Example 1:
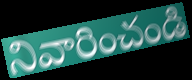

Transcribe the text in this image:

నివారించండి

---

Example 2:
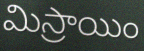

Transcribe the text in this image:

మిస్రాయిం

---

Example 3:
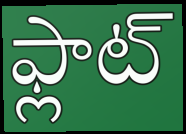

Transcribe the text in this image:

ఫ్లాట్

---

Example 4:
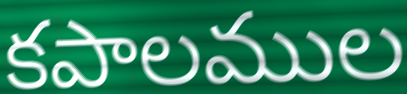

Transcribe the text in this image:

కపాలముల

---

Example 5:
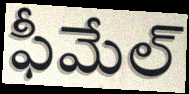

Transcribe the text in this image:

ఫీమేల్